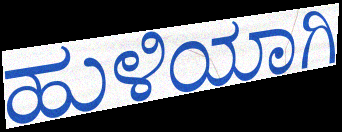
ಹುಳಿಯಾಗಿ